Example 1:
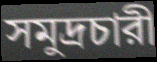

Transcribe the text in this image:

সমুদ্রচারী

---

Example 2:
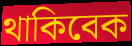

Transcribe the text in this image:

থাকিবেক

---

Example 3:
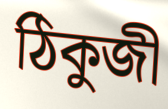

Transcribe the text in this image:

ঠিকুজী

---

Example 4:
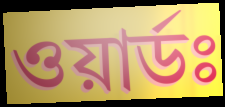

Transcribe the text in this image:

ওয়ার্ডঃ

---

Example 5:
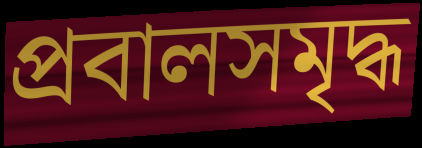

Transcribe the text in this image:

প্রবালসমৃদ্ধ